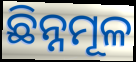
ଛିନ୍ନମୂଳ